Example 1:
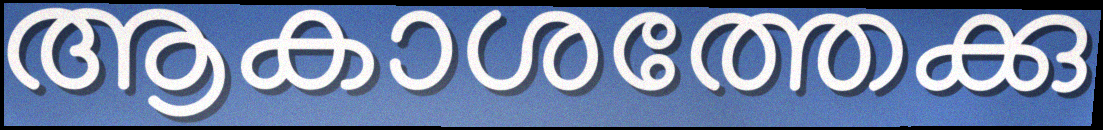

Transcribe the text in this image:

ആകാശത്തേക്കു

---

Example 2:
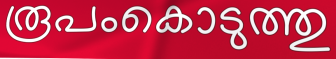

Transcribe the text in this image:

രൂപംകൊടുത്തു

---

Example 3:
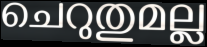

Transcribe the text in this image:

ചെറുതുമല്ല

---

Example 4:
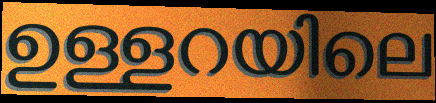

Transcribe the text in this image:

ഉള്ളറയിലെ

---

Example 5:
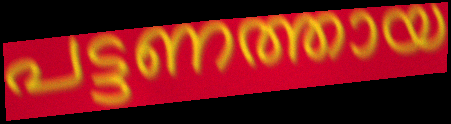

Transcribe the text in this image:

പട്ടണത്തായ